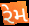
રેમ